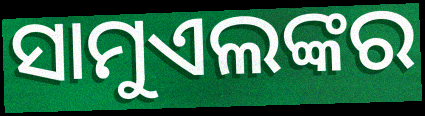
ସାମୁଏଲଙ୍କର